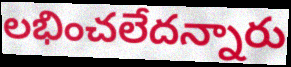
లభించలేదన్నారు